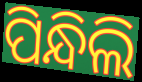
ପିନ୍ଧିଲି